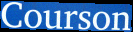
Courson